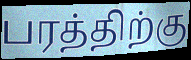
பரத்திற்கு